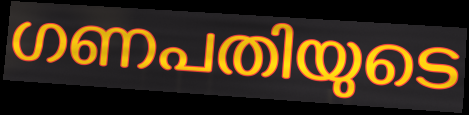
ഗണപതിയുടെ